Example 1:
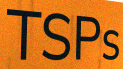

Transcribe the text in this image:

TSPs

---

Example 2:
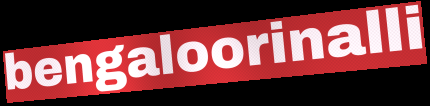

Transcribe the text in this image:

bengaloorinalli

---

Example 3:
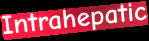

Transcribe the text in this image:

Intrahepatic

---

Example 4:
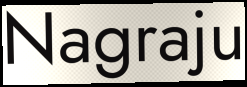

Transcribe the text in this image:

Nagraju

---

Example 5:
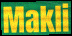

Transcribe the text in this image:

Makli